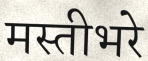
मस्तीभरे